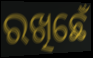
ରଖିଛେଁ